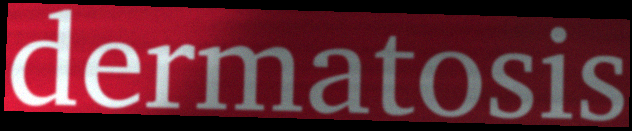
dermatosis